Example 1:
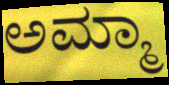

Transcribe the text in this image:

ಅಮ್ಮಾ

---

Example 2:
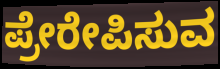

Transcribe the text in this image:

ಪ್ರೇರೇಪಿಸುವ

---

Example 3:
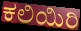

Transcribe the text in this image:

ಕಲಿಯಿರಿ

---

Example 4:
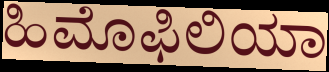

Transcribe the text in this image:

ಹಿಮೊಫಿಲಿಯಾ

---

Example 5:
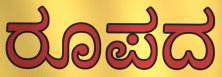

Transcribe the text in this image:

ರೂಪದ